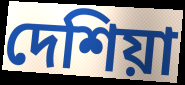
দেশিয়া